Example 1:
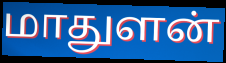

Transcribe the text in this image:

மாதுளன்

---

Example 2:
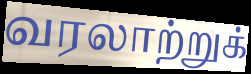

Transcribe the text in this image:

வரலாற்றுக்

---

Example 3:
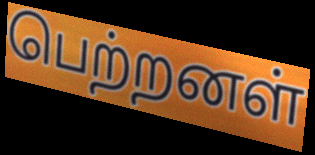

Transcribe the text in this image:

பெற்றனள்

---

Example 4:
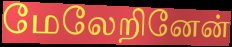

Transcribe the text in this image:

மேலேறினேன்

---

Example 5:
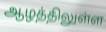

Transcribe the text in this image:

ஆழத்திலுள்ள